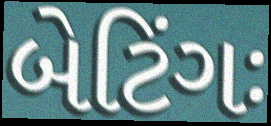
બેટિંગઃ